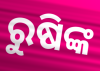
ରୁଷିଙ୍କ